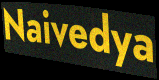
Naivedya